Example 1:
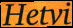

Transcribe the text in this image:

Hetvi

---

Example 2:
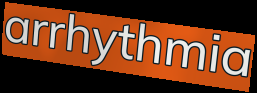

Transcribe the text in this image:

arrhythmia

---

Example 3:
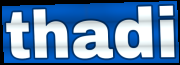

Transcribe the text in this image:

thadi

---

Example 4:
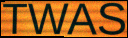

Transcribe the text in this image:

TWAS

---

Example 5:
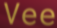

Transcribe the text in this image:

Vee